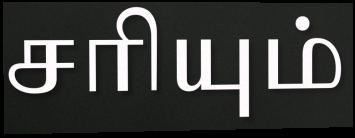
சரியும்